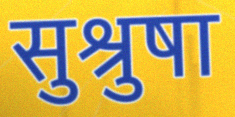
सुश्रुषा